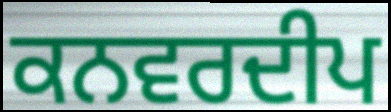
ਕਨਵਰਦੀਪ